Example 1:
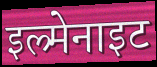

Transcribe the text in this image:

इल्मेनाइट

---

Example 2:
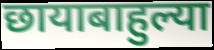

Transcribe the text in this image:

छायाबाहुल्या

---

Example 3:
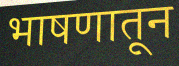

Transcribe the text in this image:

भाषणातून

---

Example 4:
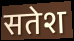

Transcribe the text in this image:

सतेश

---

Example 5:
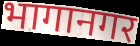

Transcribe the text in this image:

भागानगर